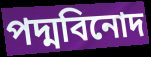
পদ্মবিনোদ